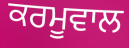
ਕਰਮੂਵਾਲ